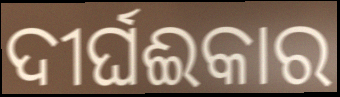
ଦୀର୍ଘଈକାର